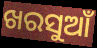
ଖରସୁଆଁ